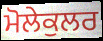
ਮੋਲੇਕੁਲਰ